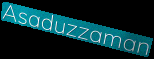
Asaduzzaman